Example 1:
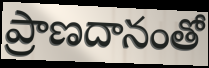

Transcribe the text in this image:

ప్రాణదానంతో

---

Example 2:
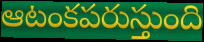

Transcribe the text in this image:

ఆటంకపరుస్తుంది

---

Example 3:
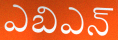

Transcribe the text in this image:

ఎబిఎన్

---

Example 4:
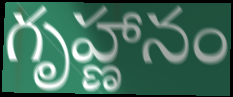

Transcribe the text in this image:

గృహ్ణానం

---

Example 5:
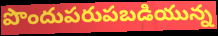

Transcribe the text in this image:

పొందుపరుపబడియున్న